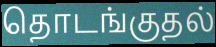
தொடங்குதல்